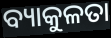
ବ୍ୟାକୁଳତା